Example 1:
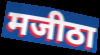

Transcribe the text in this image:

मजीठा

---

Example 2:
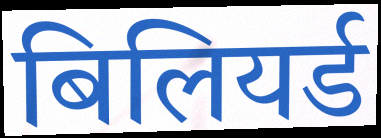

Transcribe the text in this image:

बिलियर्ड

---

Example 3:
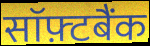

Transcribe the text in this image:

सॉफ़्टबैंक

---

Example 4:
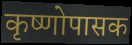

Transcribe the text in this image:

कृष्णोपासक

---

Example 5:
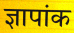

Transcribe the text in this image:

ज्ञापांक